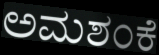
ಅಮಶಂಕೆ